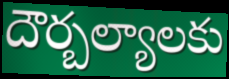
దౌర్బల్యాలకు